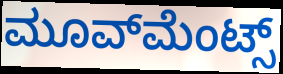
ಮೂವ್‌ಮೆಂಟ್ಸ್